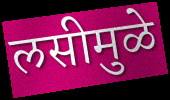
लसीमुळे